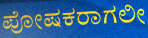
ಪೋಷಕರಾಗಲೀ